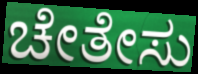
ಚೇತೇಸು